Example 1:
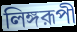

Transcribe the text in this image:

লিঙ্গরূপী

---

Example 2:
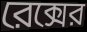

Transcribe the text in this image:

রেক্সের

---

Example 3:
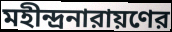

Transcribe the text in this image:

মহীন্দ্রনারায়ণের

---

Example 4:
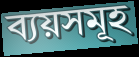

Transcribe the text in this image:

ব্যয়সমূহ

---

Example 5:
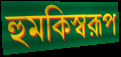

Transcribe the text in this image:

হুমকিস্বরূপ